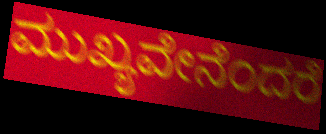
ಮುಖ್ಯವೇನೆಂದರೆ